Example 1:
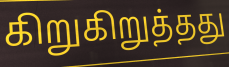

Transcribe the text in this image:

கிறுகிறுத்தது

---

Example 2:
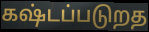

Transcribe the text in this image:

கஷ்டப்படுறத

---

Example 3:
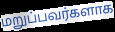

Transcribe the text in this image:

மறுப்பவர்களாக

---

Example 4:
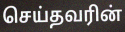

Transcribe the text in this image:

செய்தவரின்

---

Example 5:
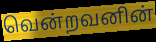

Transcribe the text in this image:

வென்றவனின்